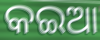
କଇଆ